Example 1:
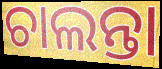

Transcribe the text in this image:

ଚାଲନ୍ତା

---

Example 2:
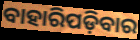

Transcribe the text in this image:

ବାହାରିପଡ଼ିବାର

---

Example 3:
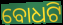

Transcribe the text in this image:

ବୋଧଟି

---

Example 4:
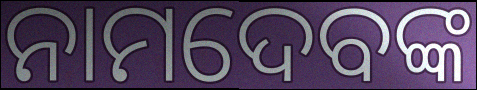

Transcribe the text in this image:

ନାମଦେବଙ୍କ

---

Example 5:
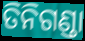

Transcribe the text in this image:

ତିନିଗଣ୍ଡା